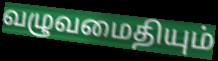
வழுவமைதியும்